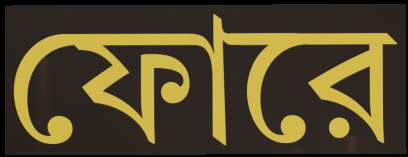
ফোরে